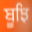
ਬੂਝਿ